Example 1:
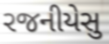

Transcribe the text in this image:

રજનીયેસુ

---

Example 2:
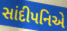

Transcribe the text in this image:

સાંદીપનિએ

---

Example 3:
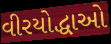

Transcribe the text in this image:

વીરયોદ્ધાઓ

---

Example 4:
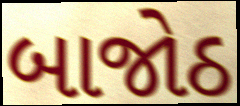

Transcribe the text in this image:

બાજોઠ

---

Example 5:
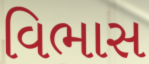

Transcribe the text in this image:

વિભાસ